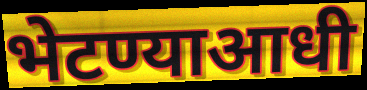
भेटण्याआधी